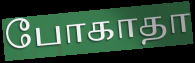
போகாதா